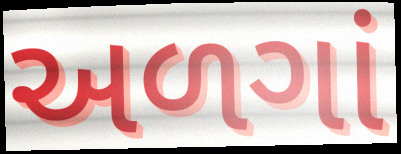
અળગાં